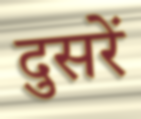
दुसरें